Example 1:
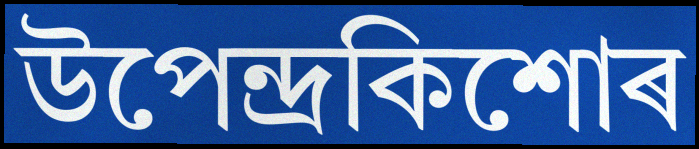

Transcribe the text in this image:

উপেন্দ্ৰকিশোৰ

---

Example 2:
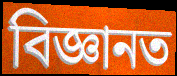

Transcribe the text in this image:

বিজ্ঞানত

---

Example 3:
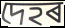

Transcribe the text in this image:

দেহৰ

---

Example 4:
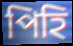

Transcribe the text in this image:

পিহি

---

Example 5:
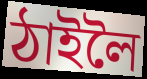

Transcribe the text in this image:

ঠাইলৈ